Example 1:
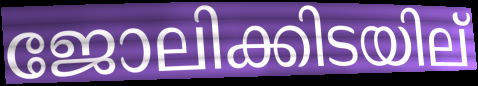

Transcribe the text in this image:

ജോലിക്കിടയില്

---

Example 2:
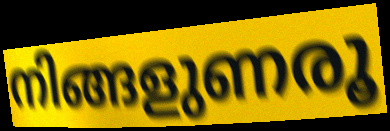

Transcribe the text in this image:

നിങ്ങളുണരൂ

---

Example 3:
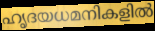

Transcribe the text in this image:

ഹൃദയധമനികളിൽ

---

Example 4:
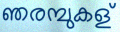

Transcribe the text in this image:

ഞരമ്പുകള്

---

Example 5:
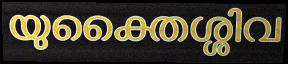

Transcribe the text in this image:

യുക്തൈശ്ശിവ